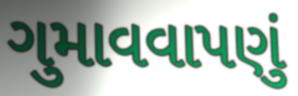
ગુમાવવાપણું